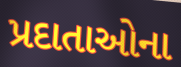
પ્રદાતાઓના